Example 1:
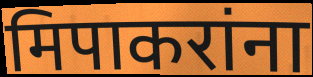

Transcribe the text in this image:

मिपाकरांना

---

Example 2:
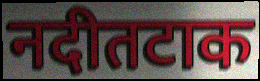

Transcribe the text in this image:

नदीतटाक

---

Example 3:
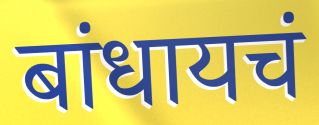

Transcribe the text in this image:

बांधायचं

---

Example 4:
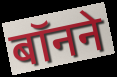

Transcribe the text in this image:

बॉनने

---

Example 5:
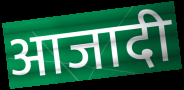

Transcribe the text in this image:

आजादी